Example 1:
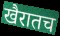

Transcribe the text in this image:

खैरातच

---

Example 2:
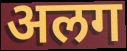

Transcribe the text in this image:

अलग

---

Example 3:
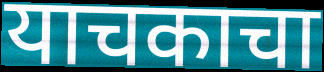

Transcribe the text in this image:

याचकाचा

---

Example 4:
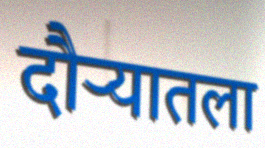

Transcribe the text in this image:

दौऱ्यातला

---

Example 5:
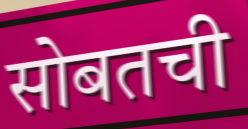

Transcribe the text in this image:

सोबतची